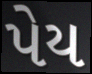
પેય